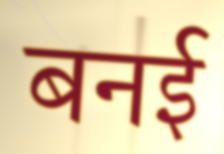
बनई